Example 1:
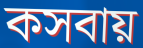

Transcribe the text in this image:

কসবায়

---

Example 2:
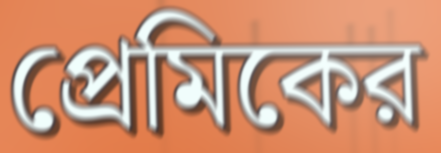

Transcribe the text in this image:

প্রেমিকের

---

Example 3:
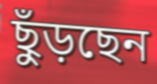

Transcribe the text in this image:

ছুঁড়ছেন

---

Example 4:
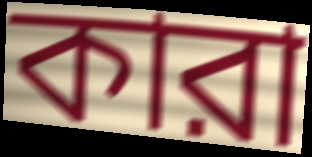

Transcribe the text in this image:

কারা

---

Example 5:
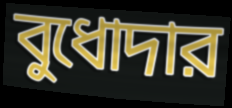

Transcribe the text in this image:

বুধোদার